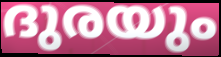
ദുരയും